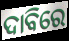
ଦାବିରେ